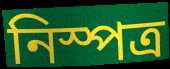
নিস্পত্র